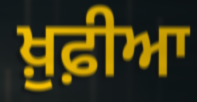
ਖ਼ੁਫ਼ੀਆ